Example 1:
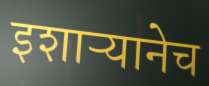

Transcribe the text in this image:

इशाऱ्यानेच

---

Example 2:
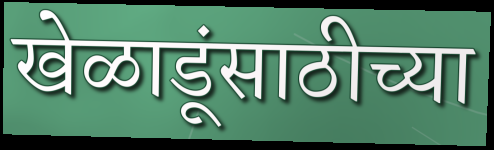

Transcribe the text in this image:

खेळाडूंसाठीच्या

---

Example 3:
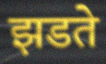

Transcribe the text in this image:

झडते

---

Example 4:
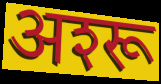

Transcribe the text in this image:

अश्रू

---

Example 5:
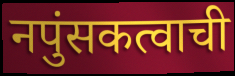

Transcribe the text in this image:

नपुंसकत्वाची